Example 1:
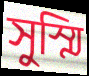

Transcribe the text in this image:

সুস্মি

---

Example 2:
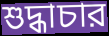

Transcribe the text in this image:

শুদ্ধাচার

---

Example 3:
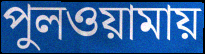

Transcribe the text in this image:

পুলওয়ামায়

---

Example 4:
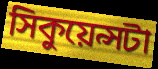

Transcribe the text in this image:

সিকুয়েন্সটা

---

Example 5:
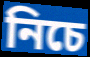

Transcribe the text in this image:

নিচে